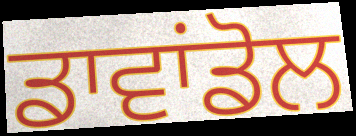
ਡਾਵਾਂਡੋਲ